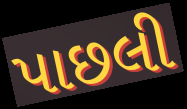
પાછલી